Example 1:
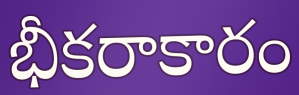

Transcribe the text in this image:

భీకరాకారం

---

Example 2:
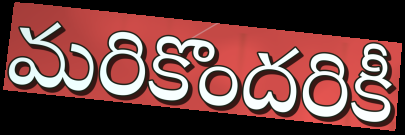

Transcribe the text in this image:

మరికొందరికీ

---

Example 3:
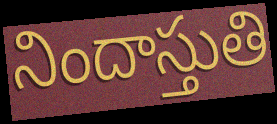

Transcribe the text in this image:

నిందాస్తుతి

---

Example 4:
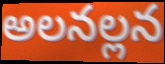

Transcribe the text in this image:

అలనల్లన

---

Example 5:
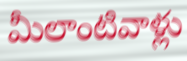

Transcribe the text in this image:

మీలాంటివాళ్లు